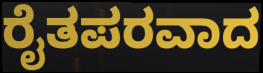
ರೈತಪರವಾದ